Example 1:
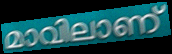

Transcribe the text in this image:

മാവിലാണ്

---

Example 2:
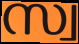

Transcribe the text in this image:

സ്വ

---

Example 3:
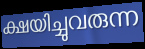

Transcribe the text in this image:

ക്ഷയിച്ചുവരുന്ന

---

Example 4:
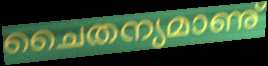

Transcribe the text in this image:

ചൈതന്യമാണു്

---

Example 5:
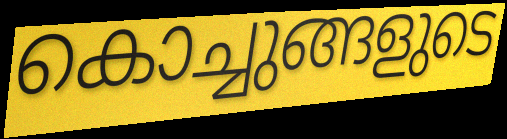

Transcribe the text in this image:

കൊച്ചുങ്ങളുടെ